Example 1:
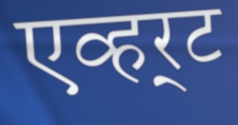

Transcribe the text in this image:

एव्हर्ट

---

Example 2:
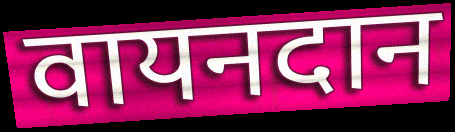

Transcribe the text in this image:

वायनदान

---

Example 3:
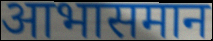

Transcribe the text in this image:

आभासमान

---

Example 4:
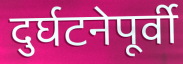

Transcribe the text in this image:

दुर्घटनेपूर्वी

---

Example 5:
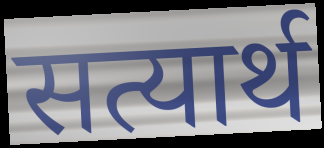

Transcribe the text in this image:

सत्यार्थ